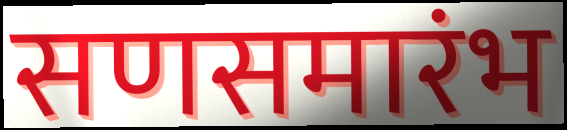
सणसमारंभ